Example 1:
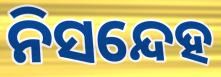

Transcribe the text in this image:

ନିସନ୍ଦେହ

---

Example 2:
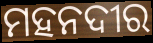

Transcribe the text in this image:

ମହନଦୀର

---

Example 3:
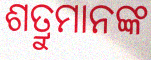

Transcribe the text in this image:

ଶତ୍ରୁମାନଙ୍କ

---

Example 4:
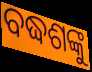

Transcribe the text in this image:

ବଦ୍ଧଶଙ୍କୁ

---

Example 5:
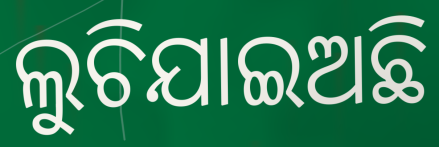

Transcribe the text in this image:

ଲୁଚିଯାଇଅଛି